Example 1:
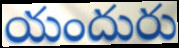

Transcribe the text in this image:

యందురు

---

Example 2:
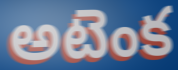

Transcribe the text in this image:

అటెంక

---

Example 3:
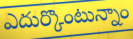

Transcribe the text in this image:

ఎదుర్కొంటున్నాం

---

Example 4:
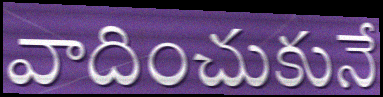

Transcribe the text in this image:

వాదించుకునే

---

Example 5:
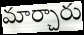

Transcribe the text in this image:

మార్చారు